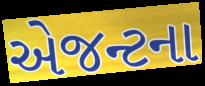
એજન્ટના